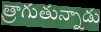
త్రాగుతున్నాడు